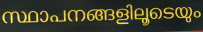
സ്ഥാപനങ്ങളിലൂടെയും